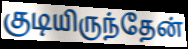
குடியிருந்தேன்